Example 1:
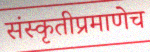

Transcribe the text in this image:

संस्कृतीप्रमाणेच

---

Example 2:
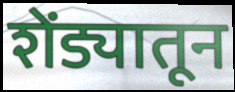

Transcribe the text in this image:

शेंड्यातून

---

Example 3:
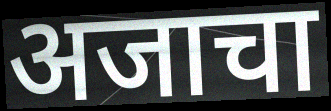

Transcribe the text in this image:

अजाचा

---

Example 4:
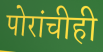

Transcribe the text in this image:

पोरांचीही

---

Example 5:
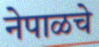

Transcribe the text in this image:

नेपाळचे